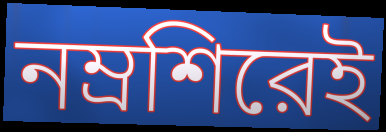
নম্রশিরেই